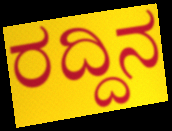
ರದ್ದಿನ